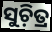
ସୁଚ଼ିତ୍ର